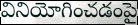
వినియోగించడంపై